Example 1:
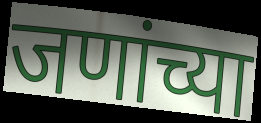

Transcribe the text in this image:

जणांच्या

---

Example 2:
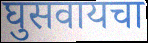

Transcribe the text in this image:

घुसवायचा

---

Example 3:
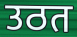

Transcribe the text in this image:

उठत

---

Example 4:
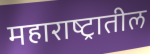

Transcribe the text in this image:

महाराष्ट्रातील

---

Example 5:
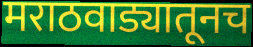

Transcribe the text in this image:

मराठवाड्यातूनच